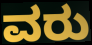
ವರು